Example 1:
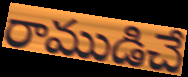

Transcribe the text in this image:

రాముడిచే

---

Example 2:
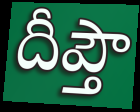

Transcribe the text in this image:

దీప్తౌ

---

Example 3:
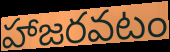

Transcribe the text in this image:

హాజరవటం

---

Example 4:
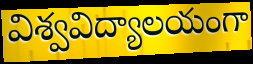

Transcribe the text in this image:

విశ్వవిద్యాలయంగా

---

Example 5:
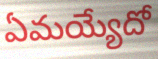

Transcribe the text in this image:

ఏమయ్యేదో